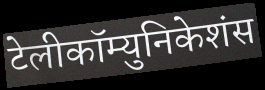
टेलीकॉम्युनिकेशंस